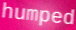
humped